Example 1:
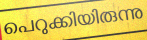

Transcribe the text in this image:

പെറുക്കിയിരുന്നു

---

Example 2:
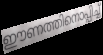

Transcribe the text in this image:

ഈണത്തിനൊപ്പിച്ച്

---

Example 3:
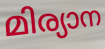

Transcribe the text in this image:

മിര്യാന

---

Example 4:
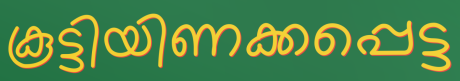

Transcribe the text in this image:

കൂട്ടിയിണക്കപ്പെട്ട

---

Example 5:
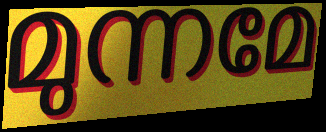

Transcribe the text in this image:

മുന്നമേ